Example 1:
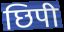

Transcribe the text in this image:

छिपी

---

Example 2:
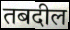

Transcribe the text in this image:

तबदील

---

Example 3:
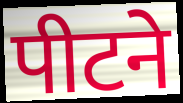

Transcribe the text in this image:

पीटने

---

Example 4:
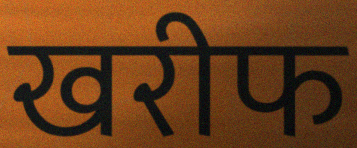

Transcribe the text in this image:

खरीफ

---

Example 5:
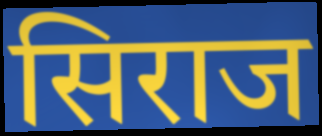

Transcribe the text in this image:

सिराज